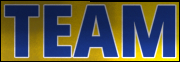
TEAM